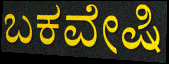
ಬಕವೇಷಿ